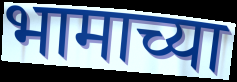
भामाच्या